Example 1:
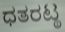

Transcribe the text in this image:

ಧತರಟ್ಠ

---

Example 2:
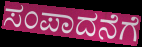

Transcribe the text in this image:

ಸಂಪಾದನೆಗೆ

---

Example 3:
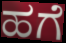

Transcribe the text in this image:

ಹಗೆ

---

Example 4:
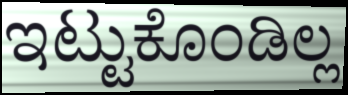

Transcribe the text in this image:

ಇಟ್ಟುಕೊಂಡಿಲ್ಲ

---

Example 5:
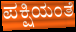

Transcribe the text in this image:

ಪಕ್ಷಿಯಂತೆ